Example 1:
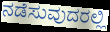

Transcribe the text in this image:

ನಡೆಸುವುದರಲ್ಲಿ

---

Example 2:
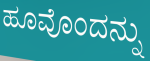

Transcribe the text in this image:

ಹೂವೊಂದನ್ನು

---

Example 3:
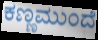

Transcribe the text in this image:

ಕಣ್ಣಮುಂದೆ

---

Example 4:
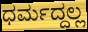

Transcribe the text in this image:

ಧರ್ಮದ್ದಲ್ಲ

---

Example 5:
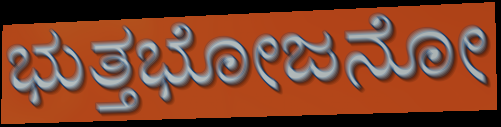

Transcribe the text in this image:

ಭುತ್ತಭೋಜನೋ